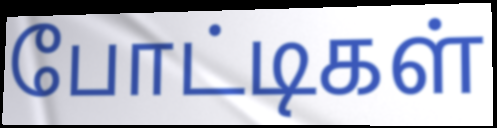
போட்டிகள்